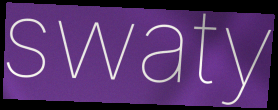
swaty